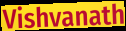
Vishvanath